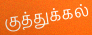
குத்துக்கல்